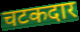
चटकदार